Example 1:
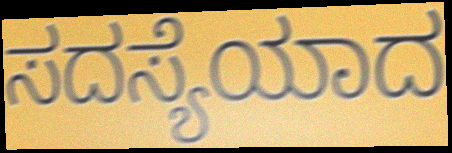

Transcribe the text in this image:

ಸದಸ್ಯೆಯಾದ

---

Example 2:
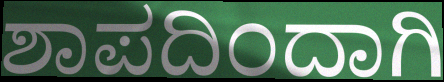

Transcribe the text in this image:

ಶಾಪದಿಂದಾಗಿ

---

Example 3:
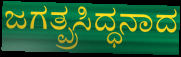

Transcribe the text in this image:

ಜಗತ್ಪ್ರಸಿದ್ಧನಾದ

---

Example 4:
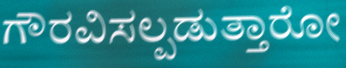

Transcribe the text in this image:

ಗೌರವಿಸಲ್ಪಡುತ್ತಾರೋ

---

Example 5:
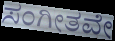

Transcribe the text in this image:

ಸಂಗೀತವೇ